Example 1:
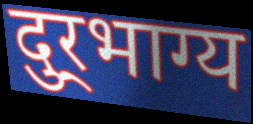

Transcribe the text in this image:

दुर्भाग्य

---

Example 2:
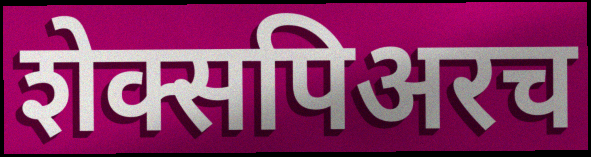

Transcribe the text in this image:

शेक्सपिअरच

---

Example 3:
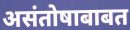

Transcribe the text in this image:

असंतोषाबाबत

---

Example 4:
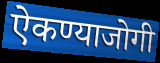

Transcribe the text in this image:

ऐकण्याजोगी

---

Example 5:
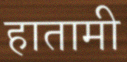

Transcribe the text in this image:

हातामी